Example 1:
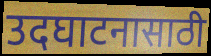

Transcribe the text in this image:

उदघाटनासाठी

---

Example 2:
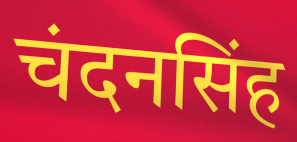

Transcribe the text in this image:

चंदनसिंह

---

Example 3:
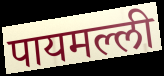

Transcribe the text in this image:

पायमल्ली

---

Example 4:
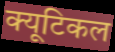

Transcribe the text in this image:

क्यूटिकल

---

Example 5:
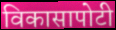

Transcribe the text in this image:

विकासापोटी